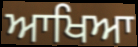
ਆਖਿਆ